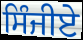
ਸਿੰਜੀਏ